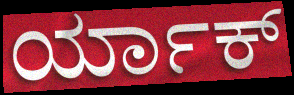
ರ್ಯಾಕ್